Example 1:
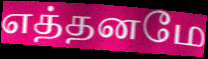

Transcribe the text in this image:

எத்தனமே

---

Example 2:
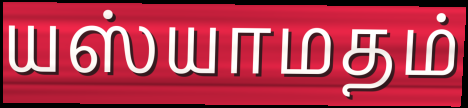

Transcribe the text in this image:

யஸ்யாமதம்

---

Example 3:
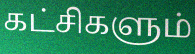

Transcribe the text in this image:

கட்சிகளும்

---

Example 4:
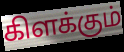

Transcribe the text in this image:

கிளக்கும்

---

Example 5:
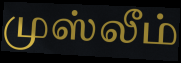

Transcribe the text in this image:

முஸ்லீம்